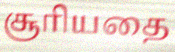
சூரியதை